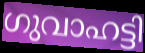
ഗുവാഹട്ടി